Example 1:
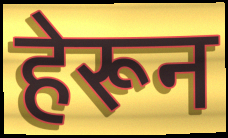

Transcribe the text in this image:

हेरून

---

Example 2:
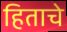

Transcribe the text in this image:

हिताचे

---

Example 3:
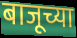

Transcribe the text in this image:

बाजूच्या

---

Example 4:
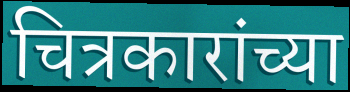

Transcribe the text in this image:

चित्रकारांच्या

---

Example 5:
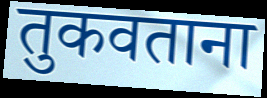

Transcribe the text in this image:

तुकवताना